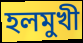
হলমুখী